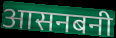
आसनबनी